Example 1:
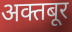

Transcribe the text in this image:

अक्तबूर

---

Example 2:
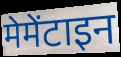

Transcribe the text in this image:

मेमेंटाइन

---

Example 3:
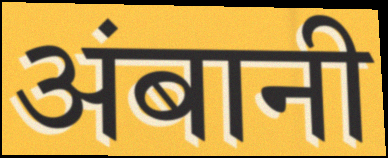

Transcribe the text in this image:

अंबानी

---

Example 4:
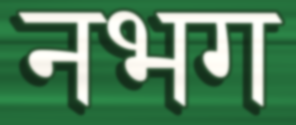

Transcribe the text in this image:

नभग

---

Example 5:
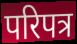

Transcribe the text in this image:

परिपत्र